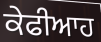
ਕੇਫੀਆਹ